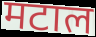
मटाल